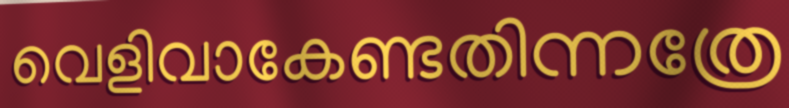
വെളിവാകേണ്ടതിന്നത്രേ